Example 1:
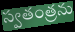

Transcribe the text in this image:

స్వతంత్రను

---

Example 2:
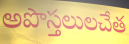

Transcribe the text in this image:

అపొస్తలులచేత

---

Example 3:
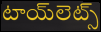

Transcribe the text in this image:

టాయ్‌లెట్స్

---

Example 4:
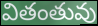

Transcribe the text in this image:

వితంతువు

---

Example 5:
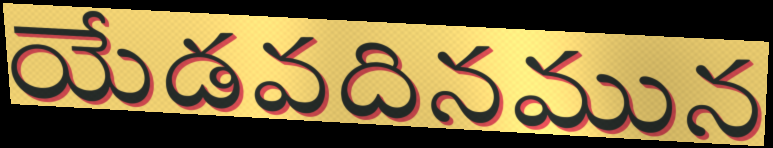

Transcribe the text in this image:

యేడవదినమున